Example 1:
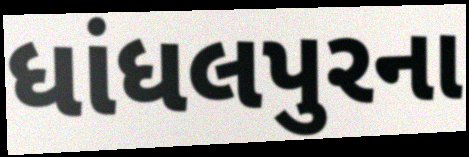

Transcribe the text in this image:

ધાંધલપુરના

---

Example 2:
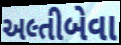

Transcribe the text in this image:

અલ્તીબેવા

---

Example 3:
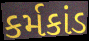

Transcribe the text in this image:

કર્મકાંડ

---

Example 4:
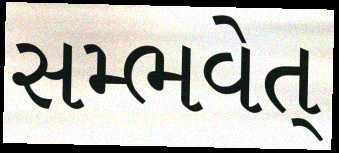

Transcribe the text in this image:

સમ્ભવેત્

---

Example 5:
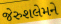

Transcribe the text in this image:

જેરુશલેમને